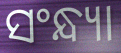
ସଂନ୍ଧ୍ଯା